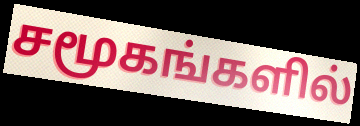
சமூகங்களில்